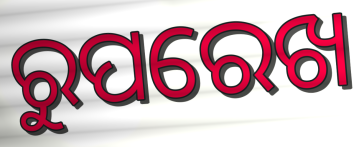
ରୁପରେଖ